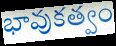
భావుకత్వం